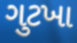
ગુટખા